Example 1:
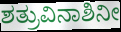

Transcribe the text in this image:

ಶತ್ರುವಿನಾಶಿನೀ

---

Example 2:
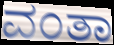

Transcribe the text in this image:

ವಂತಾ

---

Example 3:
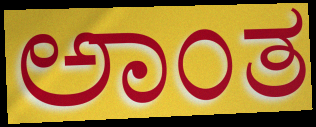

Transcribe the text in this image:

ಅಾಂತ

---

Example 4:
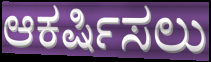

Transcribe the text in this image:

ಆಕರ್ಷಿಸಲು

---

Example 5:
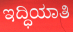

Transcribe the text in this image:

ಇದ್ಧಿಯಾತಿ